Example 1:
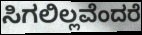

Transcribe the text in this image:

ಸಿಗಲಿಲ್ಲವೆಂದರೆ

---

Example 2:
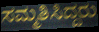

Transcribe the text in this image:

ಸಮ್ಮತಿಸಿದ್ದರು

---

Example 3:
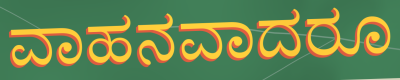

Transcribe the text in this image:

ವಾಹನವಾದರೂ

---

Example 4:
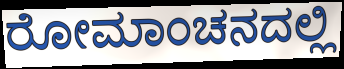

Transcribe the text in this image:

ರೋಮಾಂಚನದಲ್ಲಿ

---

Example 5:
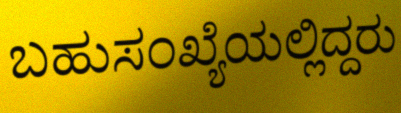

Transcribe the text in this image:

ಬಹುಸಂಖ್ಯೆಯಲ್ಲಿದ್ದರು